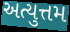
અત્યુત્તમ